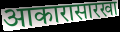
आकारासारखा